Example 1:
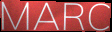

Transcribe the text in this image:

MARC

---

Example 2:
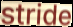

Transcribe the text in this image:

stride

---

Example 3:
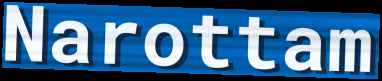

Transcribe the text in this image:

Narottam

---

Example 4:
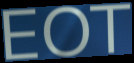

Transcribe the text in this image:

EOT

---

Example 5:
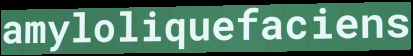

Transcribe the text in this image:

amyloliquefaciens